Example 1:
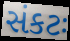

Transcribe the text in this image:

સંકટઃ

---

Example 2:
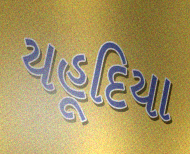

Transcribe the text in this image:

યહૂદિયા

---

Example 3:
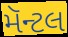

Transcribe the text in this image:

મૅન્ટલ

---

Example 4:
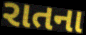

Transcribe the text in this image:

રાતના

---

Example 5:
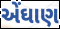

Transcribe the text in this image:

એંઘાણ